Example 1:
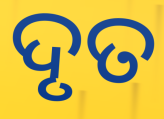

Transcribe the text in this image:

ଦୃତ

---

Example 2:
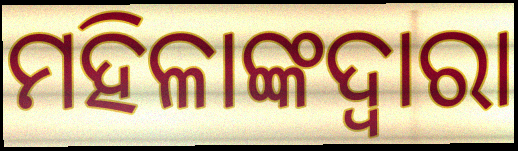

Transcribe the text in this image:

ମହିଳାଙ୍କଦ୍ୱାରା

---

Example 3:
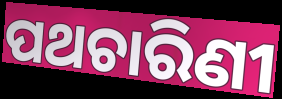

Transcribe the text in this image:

ପଥଚାରିଣୀ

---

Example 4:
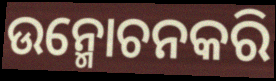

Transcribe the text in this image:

ଉନ୍ମୋଚନକରି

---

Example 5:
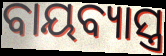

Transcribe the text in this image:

ବାୟବ୍ୟାସ୍ତ୍ର